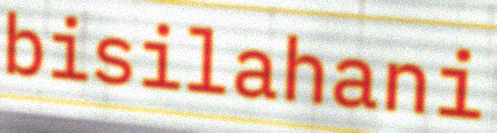
bisilahani